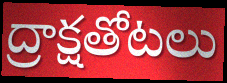
ద్రాక్షతోటలు